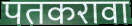
पतकरावा